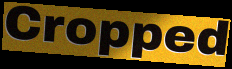
Cropped